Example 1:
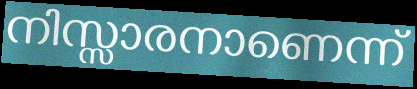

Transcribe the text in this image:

നിസ്സാരനാണെന്ന്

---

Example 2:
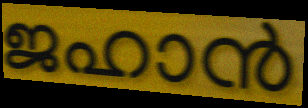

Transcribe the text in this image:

ജഹാൻ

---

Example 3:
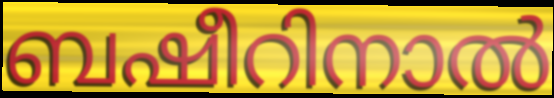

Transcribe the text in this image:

ബഷീറിനാൽ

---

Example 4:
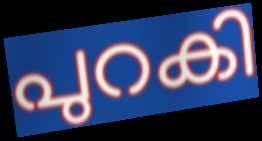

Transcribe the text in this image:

പുറകി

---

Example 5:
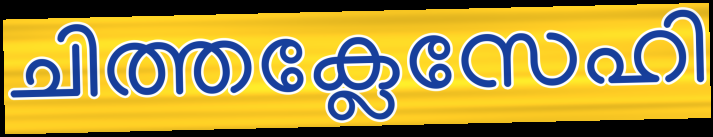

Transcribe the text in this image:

ചിത്തക്ലേസേഹി